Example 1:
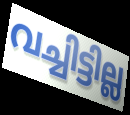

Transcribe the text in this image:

വച്ചിട്ടില്ല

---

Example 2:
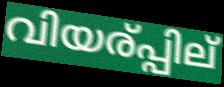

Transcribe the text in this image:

വിയര്പ്പില്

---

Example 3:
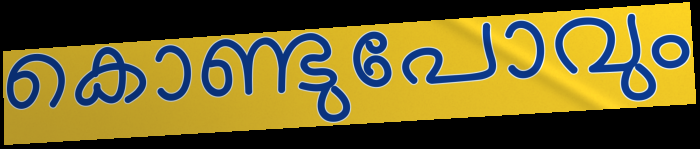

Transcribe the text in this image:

കൊണ്ടുപോവും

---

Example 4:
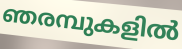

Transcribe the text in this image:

ഞരമ്പുകളിൽ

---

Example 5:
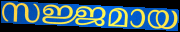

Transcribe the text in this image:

സജ്ജമായ